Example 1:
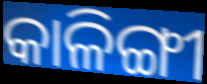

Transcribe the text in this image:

କାଳିଙ୍ଗୀ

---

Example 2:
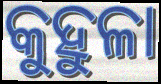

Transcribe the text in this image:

କୁହୁଳା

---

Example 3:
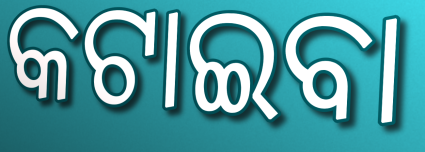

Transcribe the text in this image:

କଟାଇବା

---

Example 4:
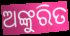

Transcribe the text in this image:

ଅଙ୍କୁରିତ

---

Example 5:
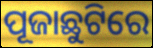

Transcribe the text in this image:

ପୂଜାଛୁଟିରେ